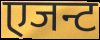
एजन्ट